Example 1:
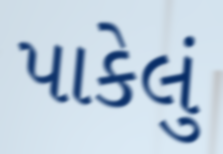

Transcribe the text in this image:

પાકેલું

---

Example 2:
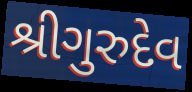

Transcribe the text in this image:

શ્રીગુરુદેવ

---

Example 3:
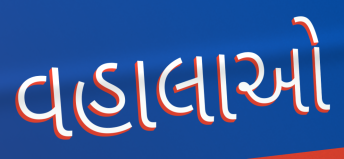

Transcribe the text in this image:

વહાલાઓ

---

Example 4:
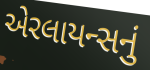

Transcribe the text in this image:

એરલાયન્સનું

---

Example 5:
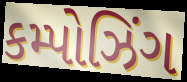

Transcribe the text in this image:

કમ્પોઝિંગ